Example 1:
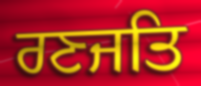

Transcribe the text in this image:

ਰਣਜਤਿ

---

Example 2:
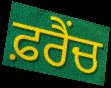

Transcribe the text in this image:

ਫ਼ਰੈਂਚ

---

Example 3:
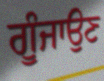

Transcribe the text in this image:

ਗੂੰਜਾਉਣ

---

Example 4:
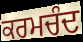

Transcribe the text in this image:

ਕਰਮਚੰਦ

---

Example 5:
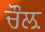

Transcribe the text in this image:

ਚੌਲ਼